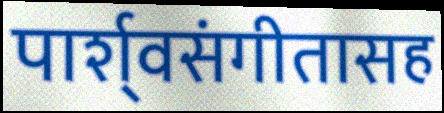
पार्श्वसंगीतासह